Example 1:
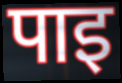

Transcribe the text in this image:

पाइ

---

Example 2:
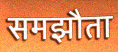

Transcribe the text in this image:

समझौता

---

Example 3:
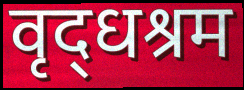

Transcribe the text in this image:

वृद्धश्रम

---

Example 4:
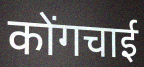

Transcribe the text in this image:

कोंगचाई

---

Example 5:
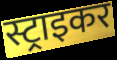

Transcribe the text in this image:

स्ट्राइकर